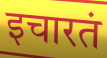
इचारतं